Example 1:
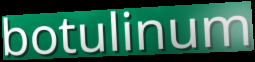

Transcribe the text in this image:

botulinum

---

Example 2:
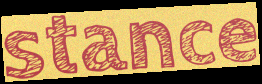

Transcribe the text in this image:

stance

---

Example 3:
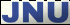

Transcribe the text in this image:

JNU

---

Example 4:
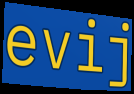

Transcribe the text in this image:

evij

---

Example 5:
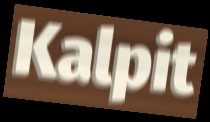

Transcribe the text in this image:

Kalpit